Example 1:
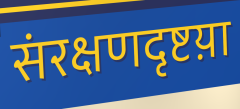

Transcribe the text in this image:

संरक्षणदृष्टय़ा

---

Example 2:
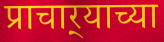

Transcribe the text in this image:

प्राचार्याच्या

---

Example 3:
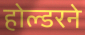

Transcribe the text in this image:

होल्डरने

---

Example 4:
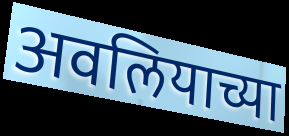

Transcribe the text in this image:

अवलियाच्या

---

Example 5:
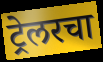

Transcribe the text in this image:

ट्रेलरचा